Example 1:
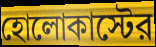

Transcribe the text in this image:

হোলোকাস্টের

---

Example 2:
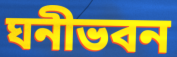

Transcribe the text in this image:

ঘনীভবন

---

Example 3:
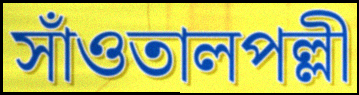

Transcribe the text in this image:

সাঁওতালপল্লী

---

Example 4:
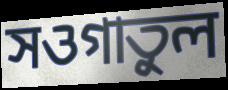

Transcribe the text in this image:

সওগাতুল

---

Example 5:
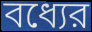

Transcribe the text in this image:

বধ্যের